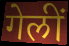
गेलीं